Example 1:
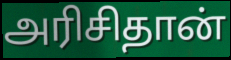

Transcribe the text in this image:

அரிசிதான்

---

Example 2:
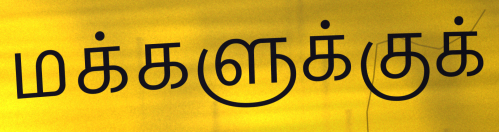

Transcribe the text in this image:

மக்களுக்குக்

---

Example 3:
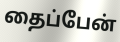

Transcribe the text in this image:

தைப்பேன்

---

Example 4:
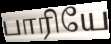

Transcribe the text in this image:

பாரியே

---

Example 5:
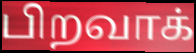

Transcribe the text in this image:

பிறவாக்